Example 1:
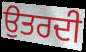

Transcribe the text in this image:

ਉਤਰਦੀ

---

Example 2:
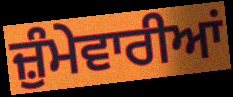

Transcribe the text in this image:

ਜ਼ੁੰਮੇਵਾਰੀਆਂ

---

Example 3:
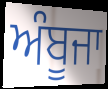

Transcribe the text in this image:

ਅੰਬੂਜਾ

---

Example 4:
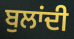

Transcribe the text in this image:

ਬੁਲਾਂਦੀ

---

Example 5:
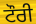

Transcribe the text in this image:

ਟੌਰੀ